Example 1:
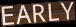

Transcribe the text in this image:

EARLY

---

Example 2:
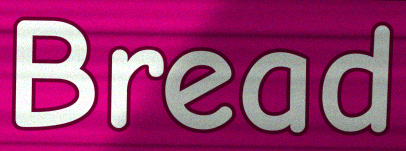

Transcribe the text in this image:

Bread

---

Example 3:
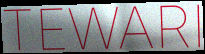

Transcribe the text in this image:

TEWARI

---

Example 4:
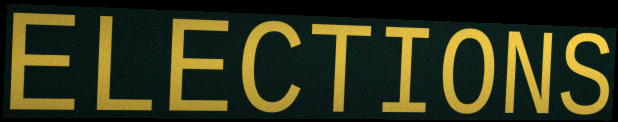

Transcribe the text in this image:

ELECTIONS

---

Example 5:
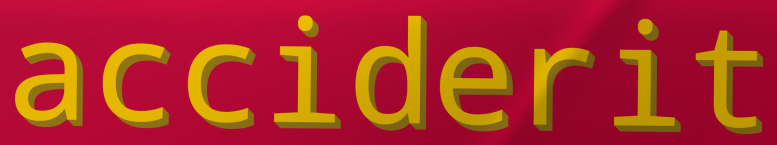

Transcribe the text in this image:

acciderit